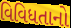
વિવિધતાનો